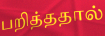
பறித்ததால்